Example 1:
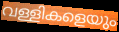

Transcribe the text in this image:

വള്ളികളെയും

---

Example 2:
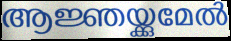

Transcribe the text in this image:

ആജ്ഞയ്ക്കുമേൽ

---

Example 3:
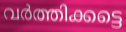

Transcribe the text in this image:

വർത്തിക്കട്ടെ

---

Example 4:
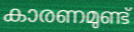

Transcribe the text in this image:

കാരണമുണ്ട്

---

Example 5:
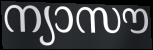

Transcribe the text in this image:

ന്യാസൗ